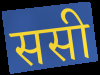
ससी